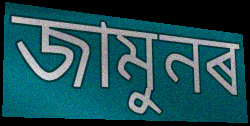
জামুনৰ